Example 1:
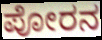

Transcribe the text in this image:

ಪೋರನ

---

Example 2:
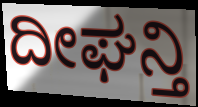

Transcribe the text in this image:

ದೀಘನ್ತಿ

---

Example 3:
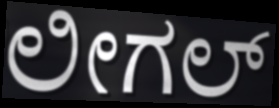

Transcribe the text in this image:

ಲೀಗಲ್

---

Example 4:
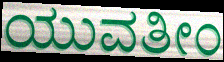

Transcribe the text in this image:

ಯುವತೀಂ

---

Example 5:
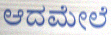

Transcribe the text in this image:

ಆದಮೇಲೆ